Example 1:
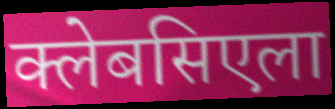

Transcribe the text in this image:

क्लेबसिएला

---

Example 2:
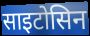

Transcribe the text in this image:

साइटोसिन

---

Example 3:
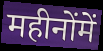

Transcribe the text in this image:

महीनोंमें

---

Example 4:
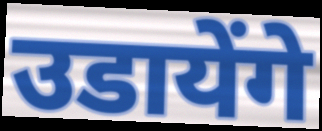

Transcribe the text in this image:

उडायेंगे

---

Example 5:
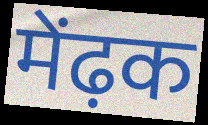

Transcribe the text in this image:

मेंढ़क